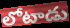
లోటాడు